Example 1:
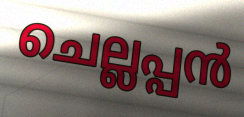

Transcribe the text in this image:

ചെല്ലപ്പൻ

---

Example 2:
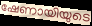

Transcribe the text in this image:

ഷേണായിയുടെ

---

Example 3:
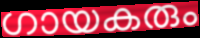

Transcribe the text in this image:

ഗായകരും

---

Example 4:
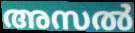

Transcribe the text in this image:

അസൽ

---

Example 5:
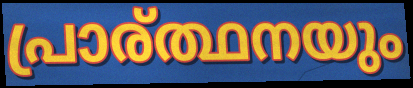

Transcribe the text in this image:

പ്രാര്ത്ഥനയും